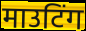
माउटिंग